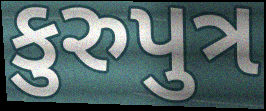
કુરુપુત્ર